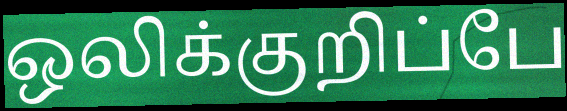
ஒலிக்குறிப்பே